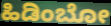
ಹಿಡಿಂಬೋ